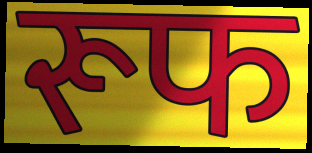
रूफ